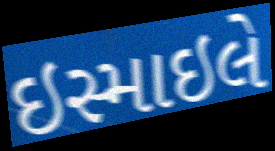
ઇસ્માઇલે